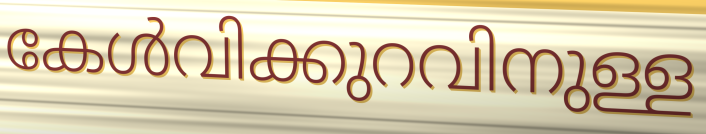
കേൾവിക്കുറവിനുള്ള